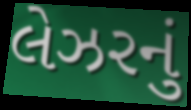
લેઝરનું